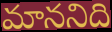
మాననిది